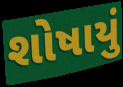
શોષાયું